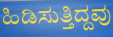
ಹಿಡಿಸುತ್ತಿದ್ದವು